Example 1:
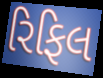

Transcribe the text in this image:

રિફિલ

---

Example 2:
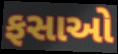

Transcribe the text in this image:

ફસાઓ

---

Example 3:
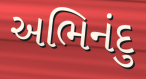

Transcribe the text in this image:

અભિનંદુ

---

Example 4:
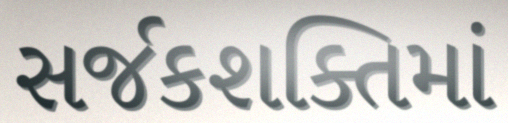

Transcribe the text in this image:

સર્જકશક્તિમાં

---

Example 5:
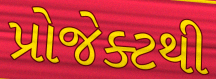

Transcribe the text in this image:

પ્રોજેક્ટથી